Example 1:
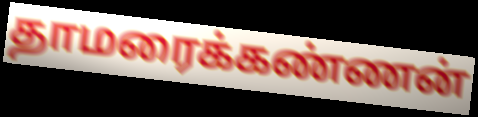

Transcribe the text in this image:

தாமரைக்கண்ணன்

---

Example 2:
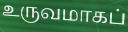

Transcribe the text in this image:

உருவமாகப்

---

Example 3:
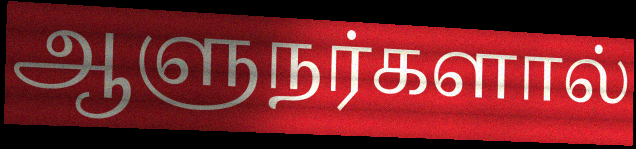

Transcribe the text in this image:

ஆளுநர்களால்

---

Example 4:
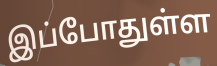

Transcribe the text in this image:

இப்போதுள்ள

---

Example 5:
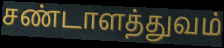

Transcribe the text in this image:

சண்டாளத்துவம்